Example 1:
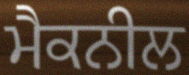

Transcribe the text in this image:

ਮੈਕਨੀਲ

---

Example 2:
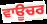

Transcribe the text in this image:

ਵਾਊਚਰ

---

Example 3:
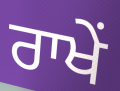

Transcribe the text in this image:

ਰਾਖੇਂ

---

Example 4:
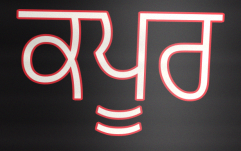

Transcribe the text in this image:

ਕਪੂਰ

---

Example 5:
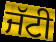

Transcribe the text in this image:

ਜੱਟੀ